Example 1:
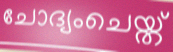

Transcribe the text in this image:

ചോദ്യംചെയ്ത്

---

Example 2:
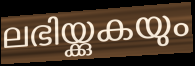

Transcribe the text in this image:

ലഭിയ്ക്കുകയും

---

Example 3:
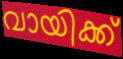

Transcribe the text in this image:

വായിക്ക്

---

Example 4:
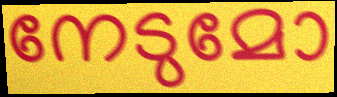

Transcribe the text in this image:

നേടുമോ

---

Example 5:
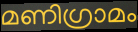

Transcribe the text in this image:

മണിഗ്രാമം